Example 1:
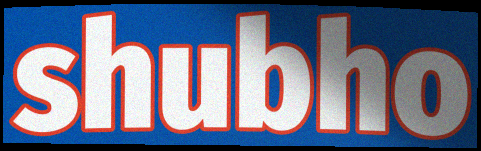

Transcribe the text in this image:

shubho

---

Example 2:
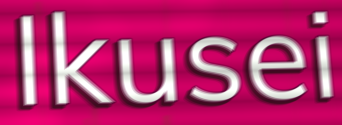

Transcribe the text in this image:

Ikusei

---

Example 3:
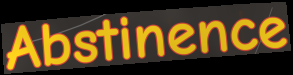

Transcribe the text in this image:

Abstinence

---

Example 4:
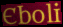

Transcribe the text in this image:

Eboli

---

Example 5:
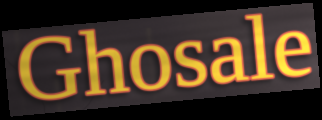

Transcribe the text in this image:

Ghosale